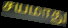
சயமாது